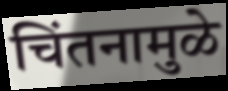
चिंतनामुळे